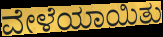
ವೇಳೆಯಾಯಿತು